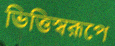
ভিত্তিস্বরূপে